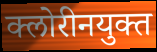
क्लोरीनयुक्त